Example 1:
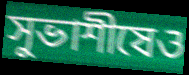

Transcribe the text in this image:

সুভাশীষেও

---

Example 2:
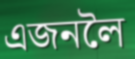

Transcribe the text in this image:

এজনলৈ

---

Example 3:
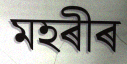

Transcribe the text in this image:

মহৰীৰ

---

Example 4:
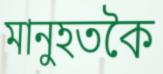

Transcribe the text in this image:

মানুহতকৈ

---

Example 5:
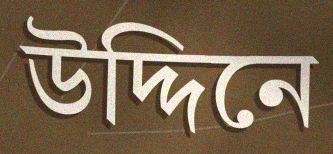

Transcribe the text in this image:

উদ্দিনে